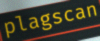
plagscan